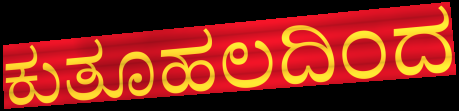
ಕುತೂಹಲದಿಂದ